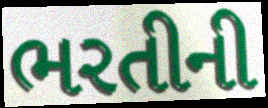
ભરતીની